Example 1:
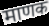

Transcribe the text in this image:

माणक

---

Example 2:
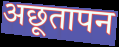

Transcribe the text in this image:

अछूतापन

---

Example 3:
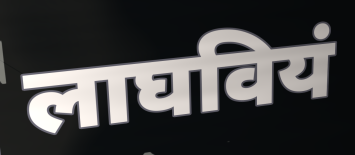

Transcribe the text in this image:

लाघवियं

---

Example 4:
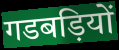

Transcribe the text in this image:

गडबड़ियों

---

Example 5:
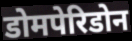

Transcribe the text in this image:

डोमपेरिडोन